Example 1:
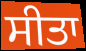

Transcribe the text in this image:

ਸੀਤਾ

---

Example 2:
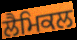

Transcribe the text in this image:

ਲੈਮਿਕਲ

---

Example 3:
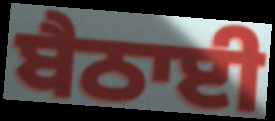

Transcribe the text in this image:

ਬੈਠਾਈ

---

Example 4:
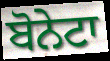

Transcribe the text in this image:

ਬੋਨੇਟਾ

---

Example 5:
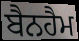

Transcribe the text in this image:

ਬੈਨਹੈਮ